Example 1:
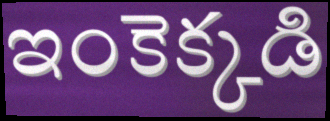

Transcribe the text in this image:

ఇంకెక్కడి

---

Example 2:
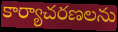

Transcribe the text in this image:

కార్యాచరణలను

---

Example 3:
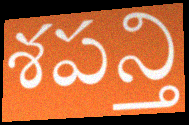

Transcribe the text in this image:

శపన్తి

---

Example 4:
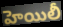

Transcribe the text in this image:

హెయిలీ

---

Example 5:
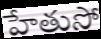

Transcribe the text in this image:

హేతుసో